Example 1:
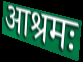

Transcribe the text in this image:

आश्रमः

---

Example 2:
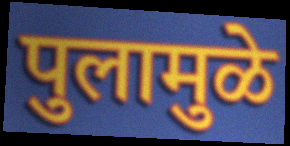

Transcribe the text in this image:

पुलामुळे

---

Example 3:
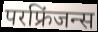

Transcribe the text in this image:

परफ्रिंजन्स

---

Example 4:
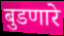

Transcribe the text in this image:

बुडणारे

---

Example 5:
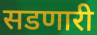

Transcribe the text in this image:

सडणारी